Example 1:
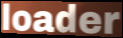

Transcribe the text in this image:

loader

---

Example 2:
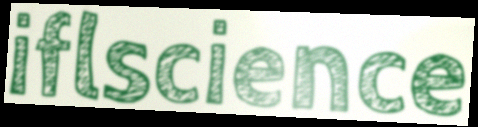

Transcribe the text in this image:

iflscience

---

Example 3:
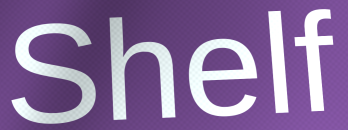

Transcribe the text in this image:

Shelf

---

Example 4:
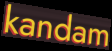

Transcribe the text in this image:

kandam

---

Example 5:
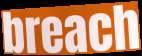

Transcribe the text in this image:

breach